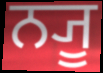
ਨ੍ਯੂ